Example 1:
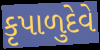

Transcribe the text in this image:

કૃપાળુદેવે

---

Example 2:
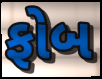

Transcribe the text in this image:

ફોબ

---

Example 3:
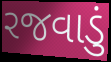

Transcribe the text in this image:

રજવાડું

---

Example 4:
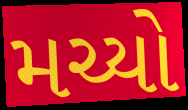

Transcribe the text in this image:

મચ્યો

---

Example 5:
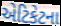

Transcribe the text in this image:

એટિકેટના